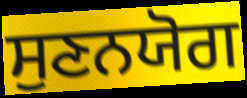
ਸੁਣਨਯੋਗ